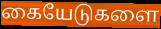
கையேடுகளை